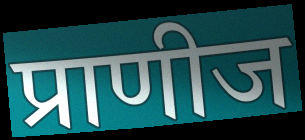
प्राणीज